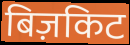
बिज़किट